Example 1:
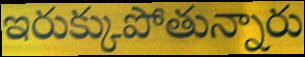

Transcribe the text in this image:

ఇరుక్కుపోతున్నారు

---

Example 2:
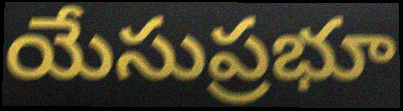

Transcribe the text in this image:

యేసుప్రభూ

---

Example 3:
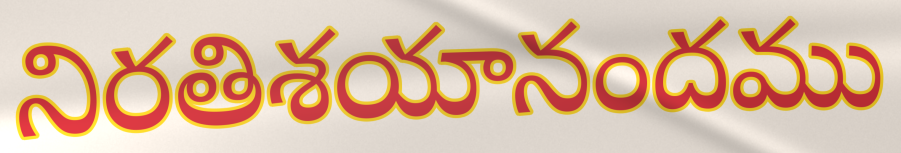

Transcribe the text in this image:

నిరతిశయానందము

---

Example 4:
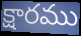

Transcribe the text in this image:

క్షారము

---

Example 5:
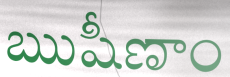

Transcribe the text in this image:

ఋషీణాం